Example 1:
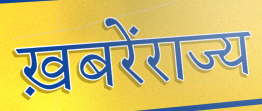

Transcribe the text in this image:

ख़बरेंराज्य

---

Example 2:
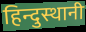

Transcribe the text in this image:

हिन्दुस्थानी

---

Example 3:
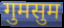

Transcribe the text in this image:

गुमसुम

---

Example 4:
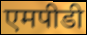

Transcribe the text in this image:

एमपीडी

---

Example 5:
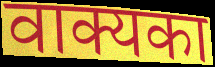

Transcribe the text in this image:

वाक्यका